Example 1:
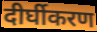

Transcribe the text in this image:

दीर्घीकरण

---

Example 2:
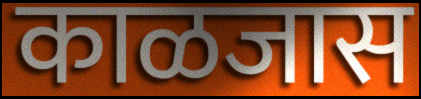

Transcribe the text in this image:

काळजास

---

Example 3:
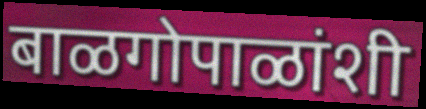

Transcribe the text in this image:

बाळगोपाळांशी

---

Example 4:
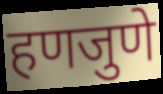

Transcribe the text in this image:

हणजुणे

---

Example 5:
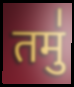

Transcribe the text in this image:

तमु॑